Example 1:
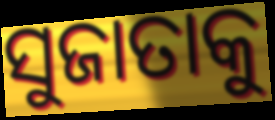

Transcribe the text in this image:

ସୁଜାତାକୁ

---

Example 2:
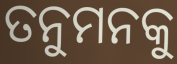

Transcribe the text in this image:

ତନୁମନକୁ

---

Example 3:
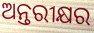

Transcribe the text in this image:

ଅନ୍ତରୀକ୍ଷର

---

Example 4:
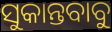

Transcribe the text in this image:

ସୁକାନ୍ତବାବୁ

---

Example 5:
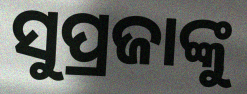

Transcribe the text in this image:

ସୁପ୍ରଜାଙ୍କୁ